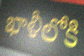
ఖాళీలోకి